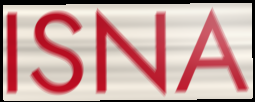
ISNA